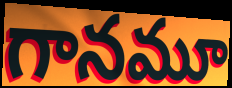
గానమూ